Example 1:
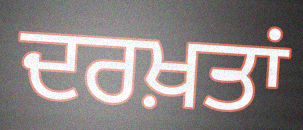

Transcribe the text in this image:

ਦਰਖ਼ਤਾਂ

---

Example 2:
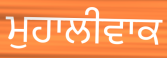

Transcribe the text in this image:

ਮੁਹਾਲੀਵਾਕ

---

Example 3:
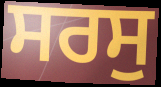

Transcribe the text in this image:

ਸਰਸੁ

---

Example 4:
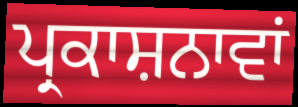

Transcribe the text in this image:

ਪ੍ਰਕਾਸ਼ਨਾਵਾਂ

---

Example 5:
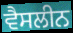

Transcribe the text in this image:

ਵੈਸਲੀਨ